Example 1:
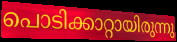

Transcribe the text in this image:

പൊടിക്കാറ്റായിരുന്നു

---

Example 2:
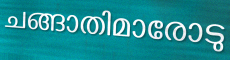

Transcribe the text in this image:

ചങ്ങാതിമാരോടു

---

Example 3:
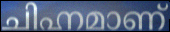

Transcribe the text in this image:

ചിഹ്നമാണ്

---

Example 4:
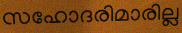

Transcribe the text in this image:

സഹോദരിമാരില്ല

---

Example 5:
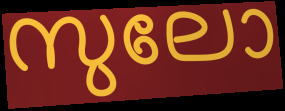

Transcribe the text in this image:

സുലോ